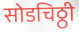
सोडचिठ्ठी